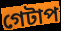
গেটাপ